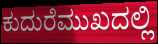
ಕುದುರೆಮುಖದಲ್ಲಿ